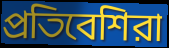
প্রতিবেশিরা